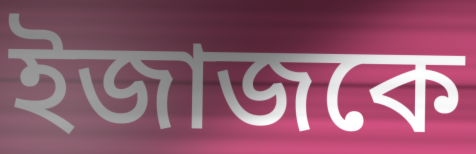
ইজাজকে